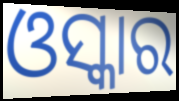
ଓସ୍କାର